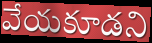
వేయకూడని